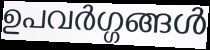
ഉപവർഗ്ഗങ്ങൾ